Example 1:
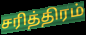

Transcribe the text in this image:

சரித்திரம்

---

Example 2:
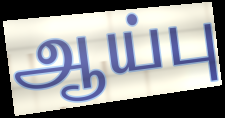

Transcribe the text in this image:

ஆய்பு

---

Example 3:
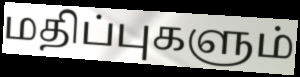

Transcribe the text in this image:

மதிப்புகளும்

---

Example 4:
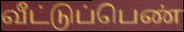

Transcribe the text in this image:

வீட்டுப்பெண்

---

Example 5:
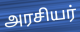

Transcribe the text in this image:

அரசியர்